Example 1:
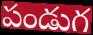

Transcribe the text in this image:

పండుగ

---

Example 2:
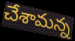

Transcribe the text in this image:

చేశామన్న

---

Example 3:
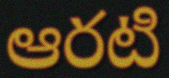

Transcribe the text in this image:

ఆరటి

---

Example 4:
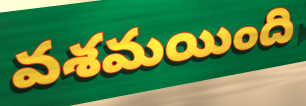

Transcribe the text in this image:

వశమయింది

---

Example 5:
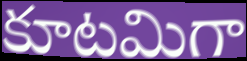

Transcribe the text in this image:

కూటమిగా